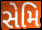
સેમિ